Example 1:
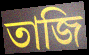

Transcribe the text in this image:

তাজি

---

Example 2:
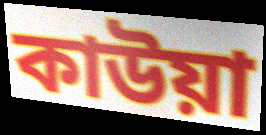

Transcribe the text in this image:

কাউয়া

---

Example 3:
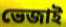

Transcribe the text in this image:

ভেজাই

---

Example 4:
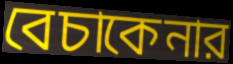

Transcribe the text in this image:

বেচাকেনার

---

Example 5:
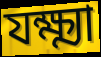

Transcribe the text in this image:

যক্ষ্মা